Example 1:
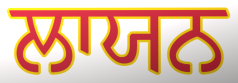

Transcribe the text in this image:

ਲਾਯਨ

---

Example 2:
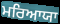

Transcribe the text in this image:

ਮਰਿਆਯਾ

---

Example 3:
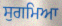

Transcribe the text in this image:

ਸੁਗਮਿਆ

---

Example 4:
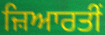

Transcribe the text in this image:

ਜ਼ਿਆਰਤੀਂ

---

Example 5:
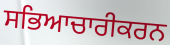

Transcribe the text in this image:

ਸਭਿਆਚਾਰੀਕਰਨ